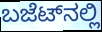
ಬಜೆಟ್‌ನಲ್ಲಿ